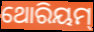
ଥୋରିୟମ୍